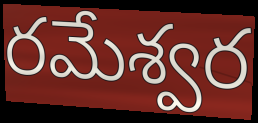
రమేశ్వర